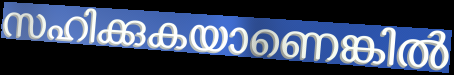
സഹിക്കുകയാണെങ്കിൽ